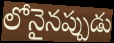
లోనైనప్పుడు